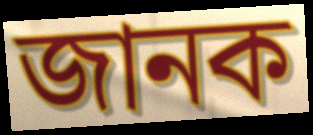
জানক